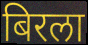
बिरला